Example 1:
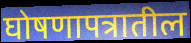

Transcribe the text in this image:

घोषणापत्रातील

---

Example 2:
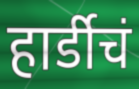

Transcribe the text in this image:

हार्डीचं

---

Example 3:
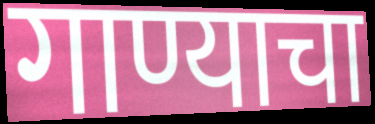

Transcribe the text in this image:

गाण्याचा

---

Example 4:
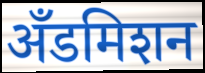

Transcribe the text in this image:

अँडमिशन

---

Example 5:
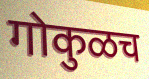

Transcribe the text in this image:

गोकुळच